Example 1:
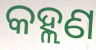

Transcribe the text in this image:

କହ୍ଲଣ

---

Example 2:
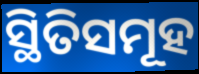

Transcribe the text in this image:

ସ୍ଥିତିସମୂହ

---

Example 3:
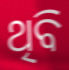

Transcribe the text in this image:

ଥିବି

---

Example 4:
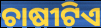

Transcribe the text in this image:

ଚାଷୀଟିଏ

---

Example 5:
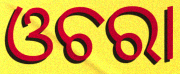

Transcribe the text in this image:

ଓଚରା